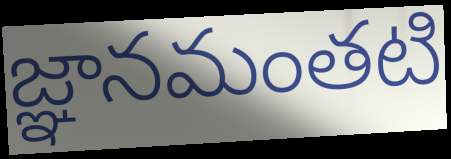
జ్ఞానమంతటి